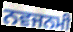
ਨਵਜਨਮੀ